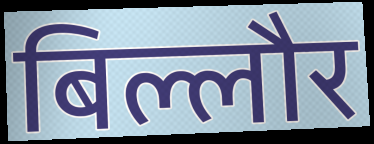
बिल्लौर